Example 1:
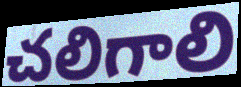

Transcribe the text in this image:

చలిగాలి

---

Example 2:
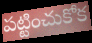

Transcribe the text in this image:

పట్టించుకోక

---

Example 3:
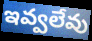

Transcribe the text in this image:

ఇవ్వలేవు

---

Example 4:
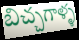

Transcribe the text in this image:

బిచ్చగాళ్ళ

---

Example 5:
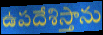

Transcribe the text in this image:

ఉపదేశిస్తాను